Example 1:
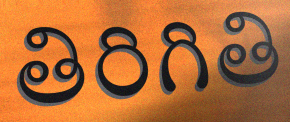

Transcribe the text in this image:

తిరిగితి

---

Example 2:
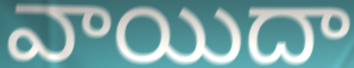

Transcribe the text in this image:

వాయిదా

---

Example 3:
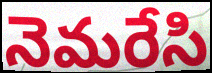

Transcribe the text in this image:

నెమరేసి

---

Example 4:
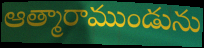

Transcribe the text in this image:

ఆత్మారాముండును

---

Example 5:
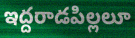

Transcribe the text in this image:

ఇద్దరాడపిల్లలూ